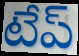
టేప్